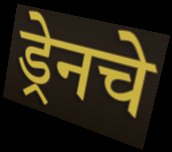
ड्रेनचे